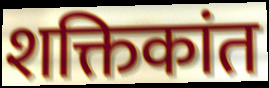
शक्तिकांत